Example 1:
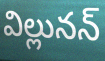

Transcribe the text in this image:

విల్లునన్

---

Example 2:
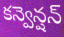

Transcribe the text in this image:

కన్వెన్షన్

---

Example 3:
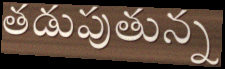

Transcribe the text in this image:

తడుపుతున్న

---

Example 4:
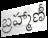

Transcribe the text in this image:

బ్రహ్మాణీ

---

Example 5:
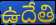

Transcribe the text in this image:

ఉదేతి